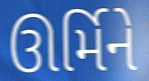
ઊર્મિને